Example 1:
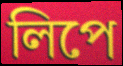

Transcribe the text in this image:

লিপে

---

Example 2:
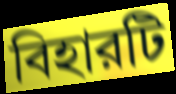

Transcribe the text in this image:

বিহারটি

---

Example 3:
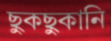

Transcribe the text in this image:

ছুকছুকানি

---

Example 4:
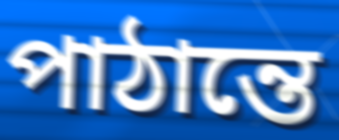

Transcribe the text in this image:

পাঠান্তে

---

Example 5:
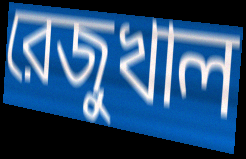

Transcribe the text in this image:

রেজুখাল